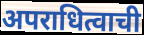
अपराधित्वाची